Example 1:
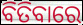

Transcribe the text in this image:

ବିତିବାରେ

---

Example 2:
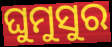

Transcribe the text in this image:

ଘୁମୁସୁର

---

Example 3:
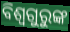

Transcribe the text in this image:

ବିଶ୍ୱଗୁରୁଙ୍କ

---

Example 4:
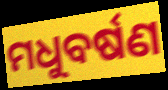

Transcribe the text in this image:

ମଧୁବର୍ଷଣ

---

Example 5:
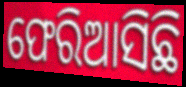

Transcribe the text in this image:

ଫେରିଆସିଛି